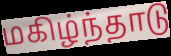
மகிழ்ந்தாடு